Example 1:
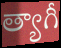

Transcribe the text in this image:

త్యాగీ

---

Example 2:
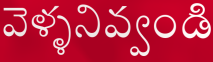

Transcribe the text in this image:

వెళ్ళనివ్వండి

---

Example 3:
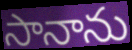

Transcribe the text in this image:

సానాను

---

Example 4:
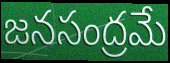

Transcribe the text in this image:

జనసంద్రమే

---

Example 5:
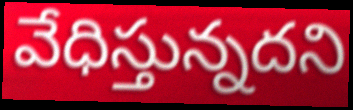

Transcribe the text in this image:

వేధిస్తున్నదని